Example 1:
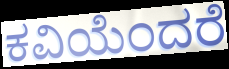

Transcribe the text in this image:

ಕವಿಯೆಂದರೆ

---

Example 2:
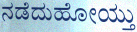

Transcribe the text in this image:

ನಡೆದುಹೋಯ್ತು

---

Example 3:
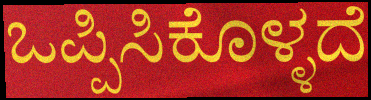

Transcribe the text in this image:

ಒಪ್ಪಿಸಿಕೊಳ್ಳದೆ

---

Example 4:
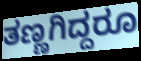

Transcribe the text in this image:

ತಣ್ಣಗಿದ್ದರೂ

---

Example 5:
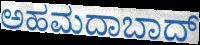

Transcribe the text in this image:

ಅಹಮದಾಬಾದ್